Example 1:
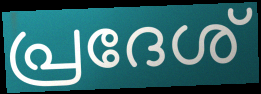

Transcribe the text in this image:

പ്രദേശ്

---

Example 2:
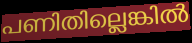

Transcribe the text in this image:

പണിതില്ലെങ്കിൽ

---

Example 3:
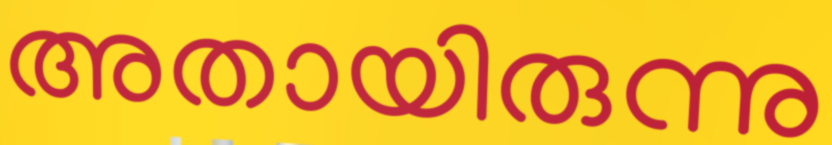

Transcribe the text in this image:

അതായിരുന്നു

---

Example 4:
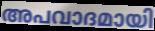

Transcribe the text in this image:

അപവാദമായി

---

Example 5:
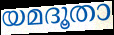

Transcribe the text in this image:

യമദൂതാ